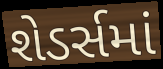
શેડર્સમાં